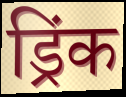
ड्रिंक